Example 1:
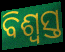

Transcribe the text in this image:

ବିଶ୍ଵସ୍ତ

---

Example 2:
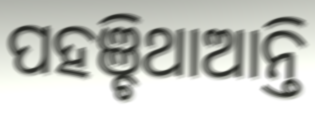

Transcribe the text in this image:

ପହଞ୍ଚିଥାଆନ୍ତି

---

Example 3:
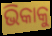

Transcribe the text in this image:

ଭିକାକୁ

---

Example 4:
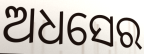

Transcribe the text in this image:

ଅଧସେର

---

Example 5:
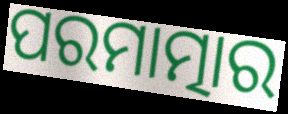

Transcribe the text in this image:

ପରମାତ୍ମାର